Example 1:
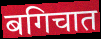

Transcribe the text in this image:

बगिचात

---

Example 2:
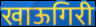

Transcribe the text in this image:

खाऊगिरी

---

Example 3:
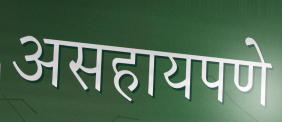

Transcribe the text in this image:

असहायपणे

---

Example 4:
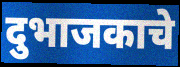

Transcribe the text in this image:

दुभाजकाचे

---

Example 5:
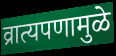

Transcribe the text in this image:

व्रात्यपणामुळे